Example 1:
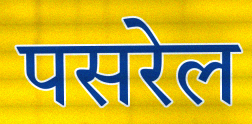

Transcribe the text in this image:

पसरेल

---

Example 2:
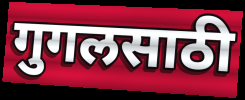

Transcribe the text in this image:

गुगलसाठी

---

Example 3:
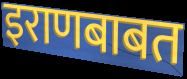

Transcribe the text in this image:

इराणबाबत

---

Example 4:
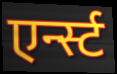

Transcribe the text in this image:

एर्न्स्ट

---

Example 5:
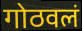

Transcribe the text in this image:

गोठवलं